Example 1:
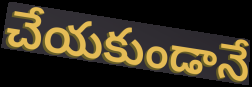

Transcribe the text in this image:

చేయకుండానే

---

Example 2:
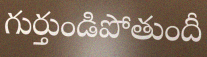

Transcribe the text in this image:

గుర్తుండిపోతుందీ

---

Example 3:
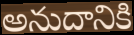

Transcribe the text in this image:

అనుదానికి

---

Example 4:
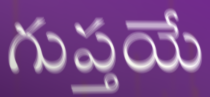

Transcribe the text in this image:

గుప్తయే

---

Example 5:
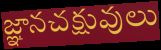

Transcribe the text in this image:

జ్ఞానచక్షువులు